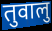
तुवालु